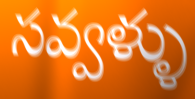
సవ్వళ్ళు